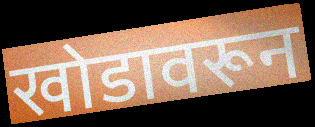
खोडावरून